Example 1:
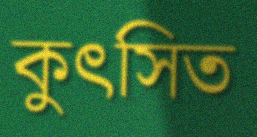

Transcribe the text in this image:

কুৎসিত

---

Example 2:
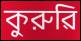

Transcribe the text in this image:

কুৰুৱি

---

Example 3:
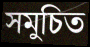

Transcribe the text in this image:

সমুচিত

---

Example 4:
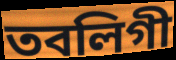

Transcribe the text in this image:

তবলিগী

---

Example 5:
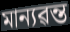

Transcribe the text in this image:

মান্যৱন্ত